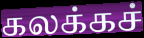
கலக்கச்